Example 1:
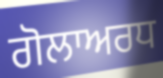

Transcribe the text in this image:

ਗੋਲਾਅਰਧ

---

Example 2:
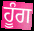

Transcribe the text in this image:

ਹੂੰਗ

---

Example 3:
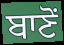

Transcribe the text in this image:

ਬਾਣੋਂ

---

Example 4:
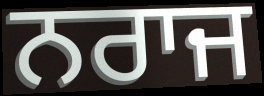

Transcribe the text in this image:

ਨਰਾਜ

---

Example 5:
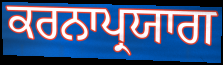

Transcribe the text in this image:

ਕਰਨਾਪ੍ਰਯਾਗ